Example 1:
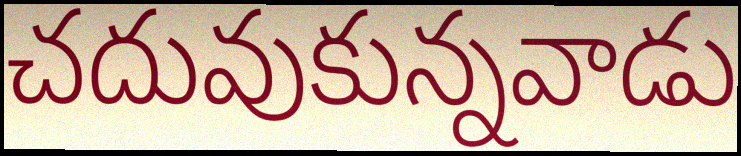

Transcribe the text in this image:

చదువుకున్నవాడు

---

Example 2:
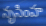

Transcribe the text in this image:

నృసింహ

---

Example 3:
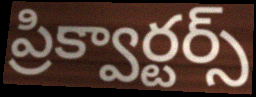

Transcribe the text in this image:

ప్రిక్వార్టర్స్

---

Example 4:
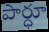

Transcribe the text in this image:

పార్ధూ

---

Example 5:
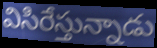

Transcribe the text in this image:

విసిరేస్తున్నాడు